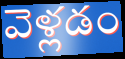
వెళ్లడం